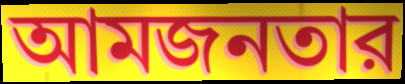
আমজনতার